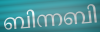
ബിന്നബി